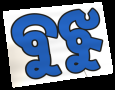
ବୁଝୁ